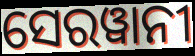
ସେରୱାନୀ